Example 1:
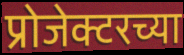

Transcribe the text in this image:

प्रोजेक्टरच्या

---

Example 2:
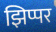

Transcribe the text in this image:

झिप्पर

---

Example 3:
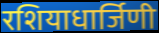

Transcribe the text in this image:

रशियाधार्जिणी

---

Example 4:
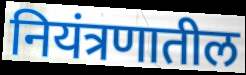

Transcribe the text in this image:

नियंत्रणातील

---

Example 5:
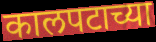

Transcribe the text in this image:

कालपटाच्या